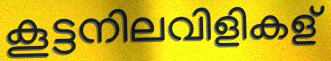
കൂട്ടനിലവിളികള്